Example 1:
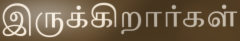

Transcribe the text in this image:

இருக்கிறார்கள்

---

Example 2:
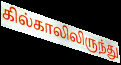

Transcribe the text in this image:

கில்காலிலிருந்து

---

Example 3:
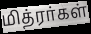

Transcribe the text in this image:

மித்ரர்கள்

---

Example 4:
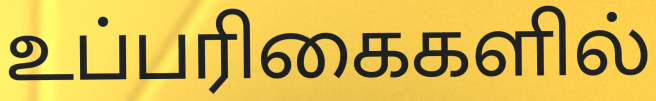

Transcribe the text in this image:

உப்பரிகைகளில்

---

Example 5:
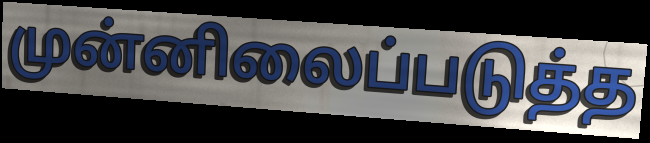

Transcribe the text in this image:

முன்னிலைப்படுத்த